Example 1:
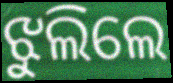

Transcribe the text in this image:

ଝୁଲିଲେ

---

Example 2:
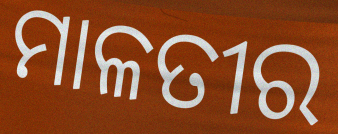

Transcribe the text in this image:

ମାଳତୀର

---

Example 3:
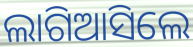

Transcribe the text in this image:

ଲାଗିଆସିଲେ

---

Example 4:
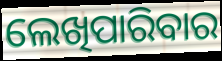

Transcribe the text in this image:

ଲେଖିପାରିବାର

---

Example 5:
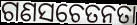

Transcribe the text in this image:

ଗଣସଚେତନତା